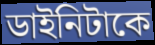
ডাইনিটাকে